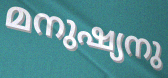
മനുഷ്യനു